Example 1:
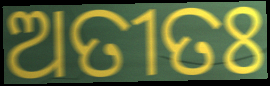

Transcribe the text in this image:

ଅତୀତଃ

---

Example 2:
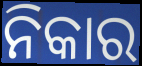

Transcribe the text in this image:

ନିକାର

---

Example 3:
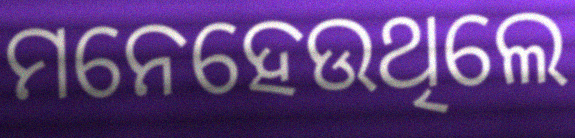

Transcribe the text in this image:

ମନେହେଉଥିଲେ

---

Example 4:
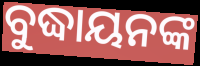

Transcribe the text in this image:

ବୁଦ୍ଧାୟନଙ୍କ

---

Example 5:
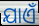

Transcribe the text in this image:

ଯାଏଁ